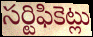
సర్టిఫికెట్లు